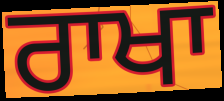
ਰਾਖਾ